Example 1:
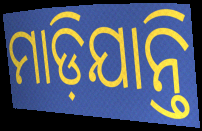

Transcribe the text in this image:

ମାଡ଼ିଯାନ୍ତି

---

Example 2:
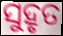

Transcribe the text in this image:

ସୁହୃତ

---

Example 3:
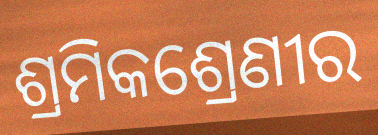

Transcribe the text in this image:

ଶ୍ରମିକଶ୍ରେଣୀର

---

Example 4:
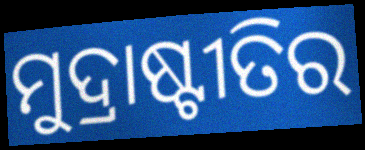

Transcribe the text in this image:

ମୁଦ୍ରାଷ୍ଟୀତିର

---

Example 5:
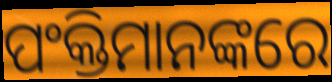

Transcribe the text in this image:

ପଂକ୍ତିମାନଙ୍କରେ